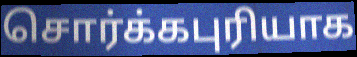
சொர்க்கபுரியாக